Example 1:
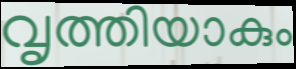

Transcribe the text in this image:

വൃത്തിയാകും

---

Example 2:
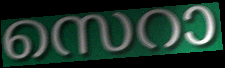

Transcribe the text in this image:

സെറാ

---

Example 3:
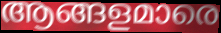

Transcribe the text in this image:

ആങ്ങളമാരെ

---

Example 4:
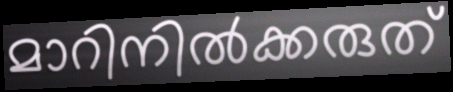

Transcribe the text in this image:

മാറിനിൽക്കരുത്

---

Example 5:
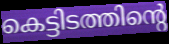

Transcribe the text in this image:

കെട്ടിടത്തിന്റെ